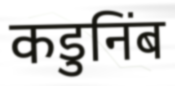
कडुनिंब